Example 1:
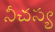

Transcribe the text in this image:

నీచస్య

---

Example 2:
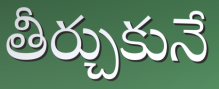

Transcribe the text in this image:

తీర్చుకునే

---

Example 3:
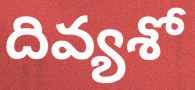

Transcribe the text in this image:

దివ్యశో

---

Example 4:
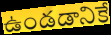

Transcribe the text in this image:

ఉండడానికే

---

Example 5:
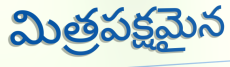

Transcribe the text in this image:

మిత్రపక్షమైన